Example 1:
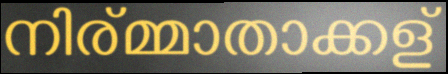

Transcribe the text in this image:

നിര്മ്മാതാക്കള്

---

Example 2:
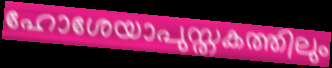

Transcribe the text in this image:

ഹോശേയാപുസ്തകത്തിലും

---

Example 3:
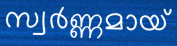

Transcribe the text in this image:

സ്വർണ്ണമായ്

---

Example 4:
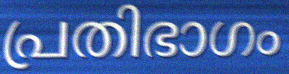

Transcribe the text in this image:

പ്രതിഭാഗം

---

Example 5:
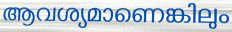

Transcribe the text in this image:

ആവശ്യമാണെങ്കിലും